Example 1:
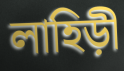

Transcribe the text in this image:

লাহিড়ী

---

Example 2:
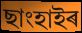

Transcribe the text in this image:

ছাংহাইৰ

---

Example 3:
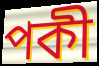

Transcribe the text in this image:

পকী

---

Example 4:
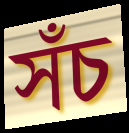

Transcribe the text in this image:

সঁচ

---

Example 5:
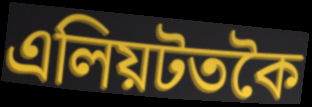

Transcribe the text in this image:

এলিয়টতকৈ